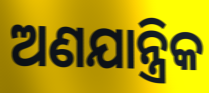
ଅଣଯାନ୍ତ୍ରିକ